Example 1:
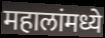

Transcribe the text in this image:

महालांमध्ये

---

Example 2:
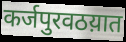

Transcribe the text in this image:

कर्जपुरवठय़ात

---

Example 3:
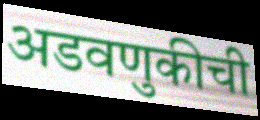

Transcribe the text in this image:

अडवणुकीची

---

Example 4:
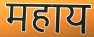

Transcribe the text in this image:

महाय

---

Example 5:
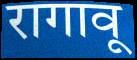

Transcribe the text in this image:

रागावू